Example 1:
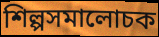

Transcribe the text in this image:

শিল্পসমালোচক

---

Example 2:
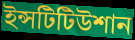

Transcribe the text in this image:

ইন্সটিটিউশান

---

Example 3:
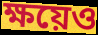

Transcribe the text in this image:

ক্ষয়েও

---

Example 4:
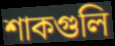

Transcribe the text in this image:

শাকগুলি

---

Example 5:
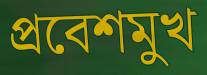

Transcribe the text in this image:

প্রবেশমুখ